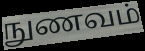
நுணவம்